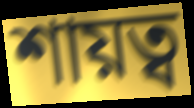
শায়ত্ব